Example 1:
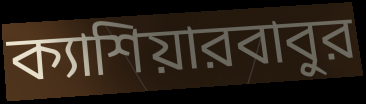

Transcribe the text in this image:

ক্যাশিয়ারবাবুর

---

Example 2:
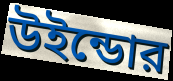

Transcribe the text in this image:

উইন্ডোর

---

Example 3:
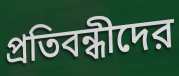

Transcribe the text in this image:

প্রতিবন্ধীদের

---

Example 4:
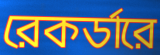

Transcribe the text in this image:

রেকর্ডারে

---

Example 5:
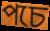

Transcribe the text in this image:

পচে